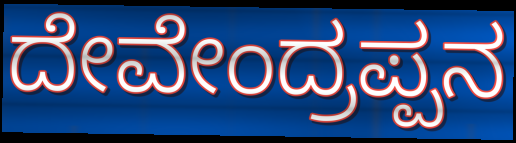
ದೇವೇಂದ್ರಪ್ಪನ